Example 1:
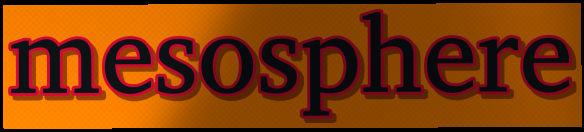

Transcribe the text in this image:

mesosphere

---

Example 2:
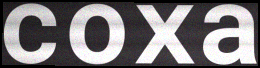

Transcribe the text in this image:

coxa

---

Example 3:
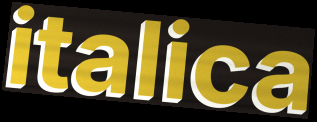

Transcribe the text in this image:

italica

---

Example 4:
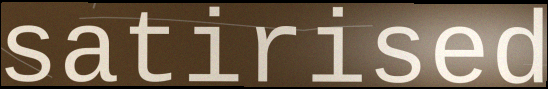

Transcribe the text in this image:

satirised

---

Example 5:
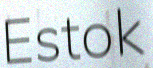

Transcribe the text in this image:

Estok